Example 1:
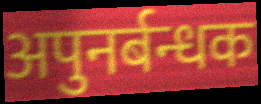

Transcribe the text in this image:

अपुनर्बन्धक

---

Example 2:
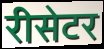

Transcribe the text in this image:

रीसेटर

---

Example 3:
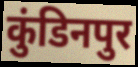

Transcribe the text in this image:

कुंडिनपुर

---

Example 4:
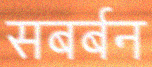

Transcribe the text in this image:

सबर्बन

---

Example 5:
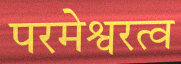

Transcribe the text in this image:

परमेश्वरत्व